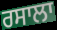
ਰਸਾਲਾ